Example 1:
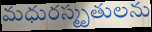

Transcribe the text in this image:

మధురస్మృతులను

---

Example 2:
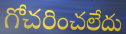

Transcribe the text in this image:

గోచరించలేదు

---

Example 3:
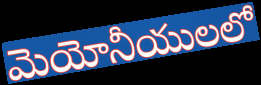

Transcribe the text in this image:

మెయోనీయులలో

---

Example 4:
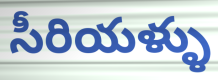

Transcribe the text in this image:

సీరియళ్ళు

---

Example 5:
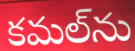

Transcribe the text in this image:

కమల్‌ను